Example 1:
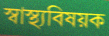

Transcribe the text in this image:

স্বাস্থ্যবিষয়ক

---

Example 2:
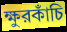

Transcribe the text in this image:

ক্ষুরকাঁচি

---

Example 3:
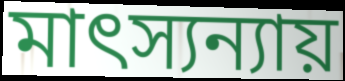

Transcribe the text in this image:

মাৎস্যন্যায়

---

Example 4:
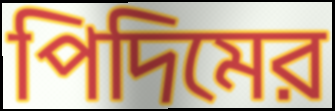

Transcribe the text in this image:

পিদিমের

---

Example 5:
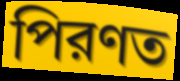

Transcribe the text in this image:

পিরণত